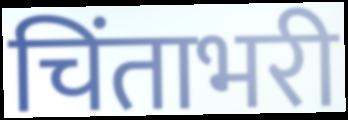
चिंताभरी